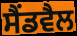
ਸੈਂਡਵੈਲ